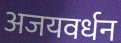
अजयवर्धन